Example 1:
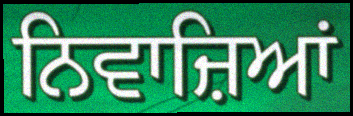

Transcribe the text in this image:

ਨਿਵਾਜ਼ਿਆਂ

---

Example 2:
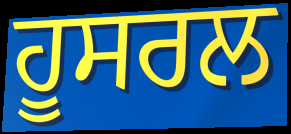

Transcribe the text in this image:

ਹੂਸਰਲ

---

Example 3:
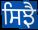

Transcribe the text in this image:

ਸਿਝੈ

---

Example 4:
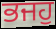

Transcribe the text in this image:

ਭਜਹੁ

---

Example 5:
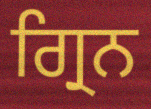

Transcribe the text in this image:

ਗ੍ਰਿਨ